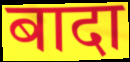
बादा